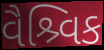
વૈશ્ર્વિક